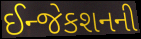
ઈન્જેકશનની